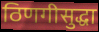
ठिणगीसुद्धा